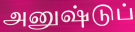
அனுஷ்டுப்